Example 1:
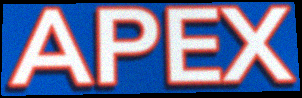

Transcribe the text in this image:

APEX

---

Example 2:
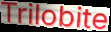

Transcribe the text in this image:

Trilobite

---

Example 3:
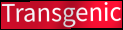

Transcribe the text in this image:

Transgenic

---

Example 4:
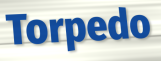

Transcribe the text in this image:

Torpedo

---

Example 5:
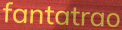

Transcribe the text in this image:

fantatrao